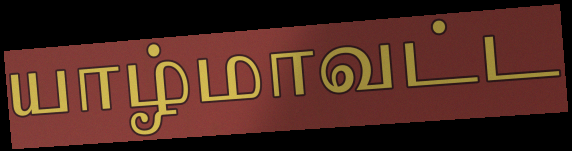
யாழ்மாவட்ட